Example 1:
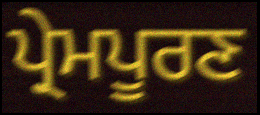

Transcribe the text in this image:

ਪ੍ਰੇਮਪੂਰਣ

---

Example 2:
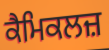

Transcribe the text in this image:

ਕੈਮਿਕਲਜ਼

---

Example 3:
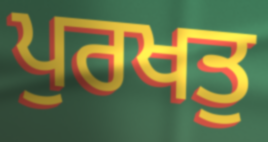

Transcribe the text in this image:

ਪੁਰਖਤੁ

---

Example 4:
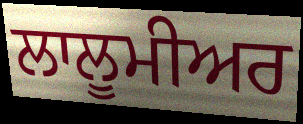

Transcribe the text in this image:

ਲਾਲੂਮੀਅਰ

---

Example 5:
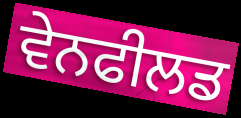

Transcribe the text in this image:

ਵੇਨਫੀਲਡ